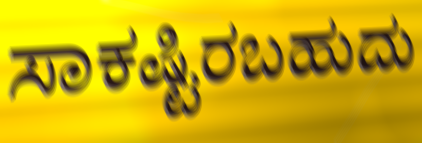
ಸಾಕಷ್ಟಿರಬಹುದು